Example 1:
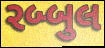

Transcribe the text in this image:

રબ્બુલ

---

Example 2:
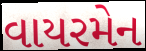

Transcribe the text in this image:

વાયરમેન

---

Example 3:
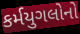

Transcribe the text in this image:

કર્મયુગલોનો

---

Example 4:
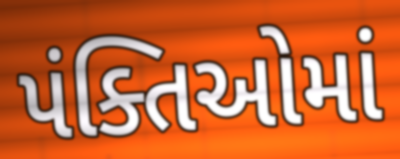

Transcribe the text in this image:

પંક્તિઓમાં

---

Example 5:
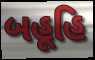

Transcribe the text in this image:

બહૂહિ